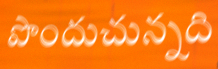
పొందుచున్నది